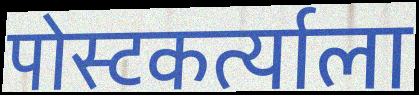
पोस्टकर्त्याला